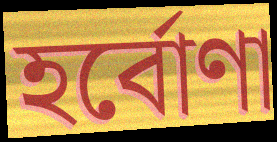
হর্বোণা